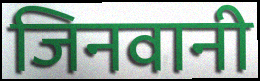
जिनवानी